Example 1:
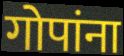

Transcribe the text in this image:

गोपांना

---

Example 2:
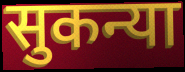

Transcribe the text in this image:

सुकन्या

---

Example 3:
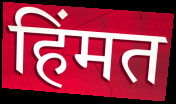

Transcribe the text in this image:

हिंमत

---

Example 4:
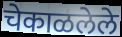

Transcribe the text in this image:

चेकाळलेले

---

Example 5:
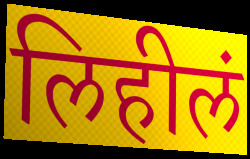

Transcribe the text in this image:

लिहीलं